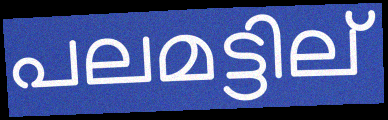
പലമട്ടില്